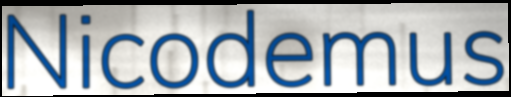
Nicodemus